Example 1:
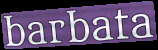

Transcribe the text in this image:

barbata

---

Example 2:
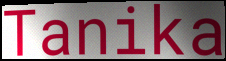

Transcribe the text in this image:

Tanika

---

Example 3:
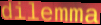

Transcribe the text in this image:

dilemma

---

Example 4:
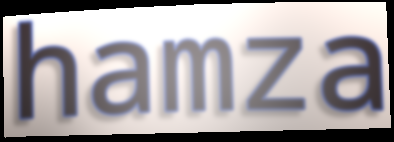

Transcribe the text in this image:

hamza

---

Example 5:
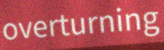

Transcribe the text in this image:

overturning